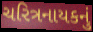
ચરિત્રનાયકનું